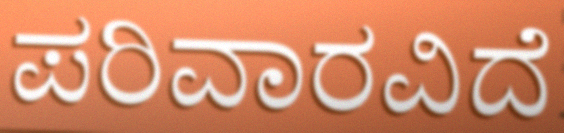
ಪರಿವಾರವಿದೆ